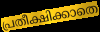
പ്രതീക്ഷിക്കാതെ